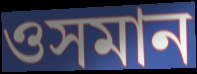
ওসমান